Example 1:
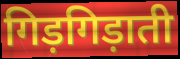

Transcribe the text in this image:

गिड़गिड़ाती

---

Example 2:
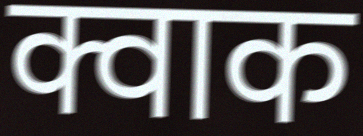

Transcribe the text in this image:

क्वाक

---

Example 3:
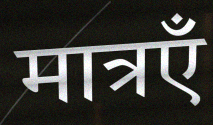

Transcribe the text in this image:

मात्रएँ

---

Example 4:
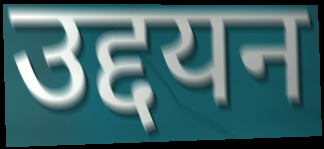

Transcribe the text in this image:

उद्दयन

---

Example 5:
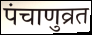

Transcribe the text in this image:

पंचाणुव्रत